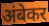
अंबेकर